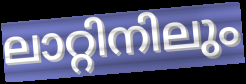
ലാറ്റിനിലും